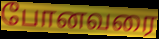
போனவரை